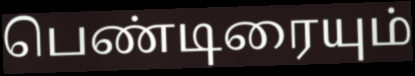
பெண்டிரையும்